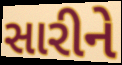
સારીને